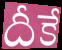
దీకే